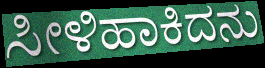
ಸೀಳಿಹಾಕಿದನು